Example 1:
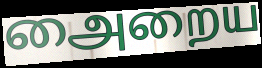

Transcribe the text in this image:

அைறைய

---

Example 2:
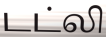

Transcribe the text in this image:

டட்லி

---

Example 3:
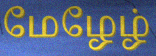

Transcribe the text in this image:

மேழேழ்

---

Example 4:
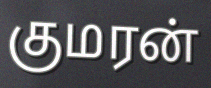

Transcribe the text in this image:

குமரன்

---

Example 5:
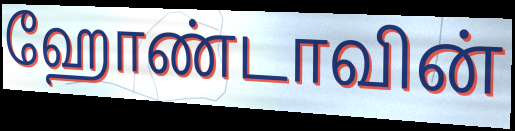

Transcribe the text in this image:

ஹோண்டாவின்